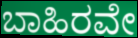
ಬಾಹಿರವೇ